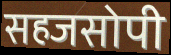
सहजसोपी